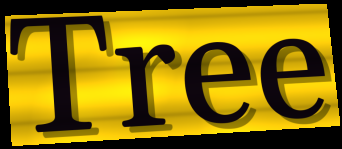
Tree